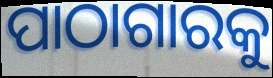
ପାଠାଗାରକୁ